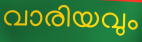
വാരിയവും